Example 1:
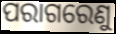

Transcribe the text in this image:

ପରାଗରେଣୁ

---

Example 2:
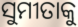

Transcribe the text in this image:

ସୁମୀତାକୁ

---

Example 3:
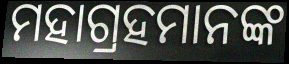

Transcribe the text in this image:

ମହାଗ୍ରହମାନଙ୍କ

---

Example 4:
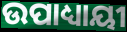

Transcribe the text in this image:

ଉପାଧ୍ୟାୟୀ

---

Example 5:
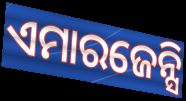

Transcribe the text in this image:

ଏମାରଜେନ୍ସି